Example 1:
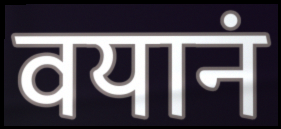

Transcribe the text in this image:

वयानं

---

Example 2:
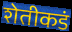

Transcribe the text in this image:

शेतीकडं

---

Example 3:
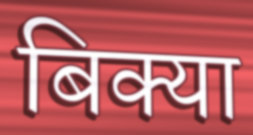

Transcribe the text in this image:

बिक्या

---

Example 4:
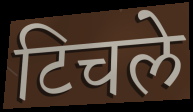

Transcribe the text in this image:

टिचले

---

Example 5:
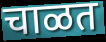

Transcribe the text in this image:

चाळत